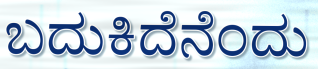
ಬದುಕಿದೆನೆಂದು